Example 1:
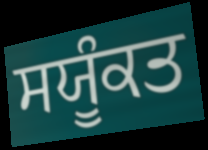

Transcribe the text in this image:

ਸਯੂੰਕਤ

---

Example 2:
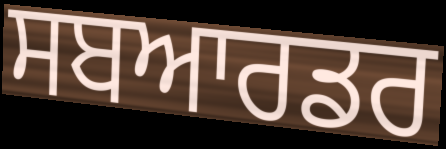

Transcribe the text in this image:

ਸਬਆਰਡਰ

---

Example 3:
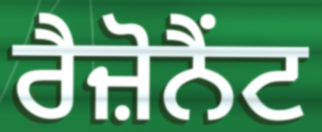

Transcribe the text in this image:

ਰੈਜ਼ੋਨੈਂਟ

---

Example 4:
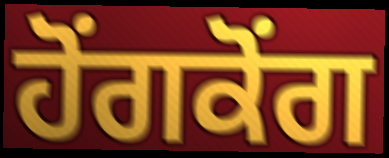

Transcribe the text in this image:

ਹੋਂਗਕੋਂਗ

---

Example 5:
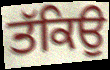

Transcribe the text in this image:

ਤੱਕਿਉ